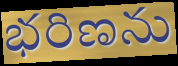
భరిణను